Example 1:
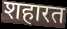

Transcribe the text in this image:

शहारत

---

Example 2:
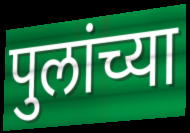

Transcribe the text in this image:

पुलांच्या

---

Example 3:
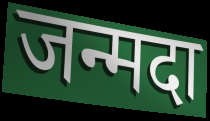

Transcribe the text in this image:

जन्मदा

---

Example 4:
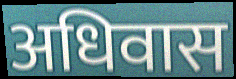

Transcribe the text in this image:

अधिवास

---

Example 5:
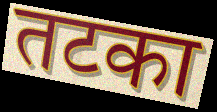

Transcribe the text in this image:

तटका